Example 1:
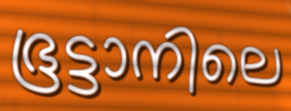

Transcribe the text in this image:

ഭൂട്ടാനിലെ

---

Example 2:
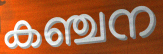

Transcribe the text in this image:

കഞ്ചന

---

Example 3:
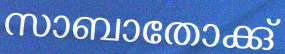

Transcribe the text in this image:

സാബാതോക്കു്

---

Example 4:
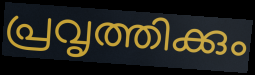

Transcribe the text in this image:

പ്രവൃത്തിക്കും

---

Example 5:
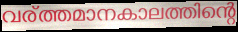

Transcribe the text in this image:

വര്ത്തമാനകാലത്തിന്റെ